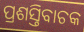
ପ୍ରଶସ୍ତିବାଚକ